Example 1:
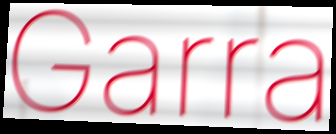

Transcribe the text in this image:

Garra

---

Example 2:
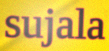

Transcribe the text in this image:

sujala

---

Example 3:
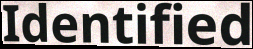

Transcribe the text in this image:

Identified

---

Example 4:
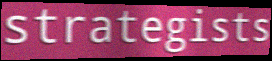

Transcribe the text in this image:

strategists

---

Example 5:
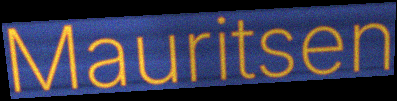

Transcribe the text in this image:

Mauritsen